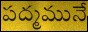
పద్మమునే